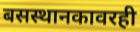
बसस्थानकावरही